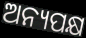
ଅନ୍ୟପକ୍ଷ